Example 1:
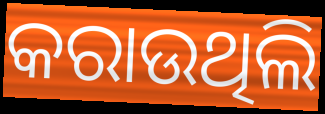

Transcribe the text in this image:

କରାଉଥିଲି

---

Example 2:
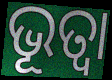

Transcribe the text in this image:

ଭୂତ୍ଵା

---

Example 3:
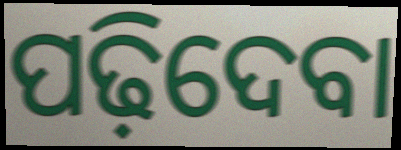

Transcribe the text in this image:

ପଢ଼ିଦେବା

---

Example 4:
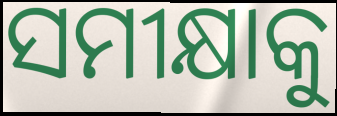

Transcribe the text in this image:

ସମୀକ୍ଷାକୁ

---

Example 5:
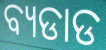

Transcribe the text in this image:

ବ୍ୟଡାଡ